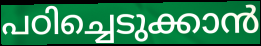
പഠിച്ചെടുക്കാൻ